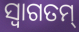
ସ୍ୱାଗତମ୍